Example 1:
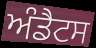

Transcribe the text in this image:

ਅੰਡੈਟਸ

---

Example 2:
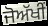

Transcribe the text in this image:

ਜੋਅੱਖੀਂ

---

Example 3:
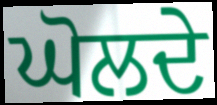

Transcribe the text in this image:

ਘੋਲਦੇ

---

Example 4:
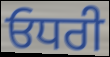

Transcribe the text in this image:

ਓਧਰੀ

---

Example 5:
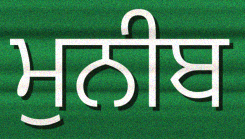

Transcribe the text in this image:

ਮੁਨੀਬ